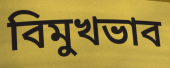
বিমুখভাব